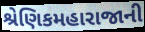
શ્રેણિકમહારાજાની